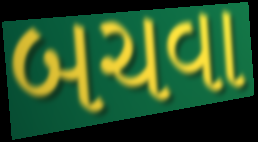
બચવા